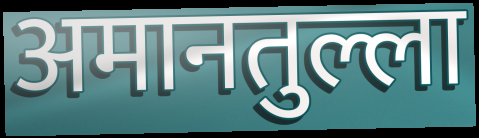
अमानतुल्ला